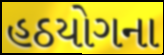
હઠયોગના